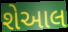
શેઆલ